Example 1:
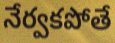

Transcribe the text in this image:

నేర్వకపోతే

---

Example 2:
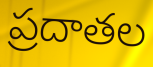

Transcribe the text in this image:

ప్రదాతల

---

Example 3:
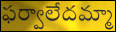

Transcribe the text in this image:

ఫర్వాలేదమ్మా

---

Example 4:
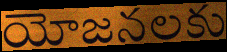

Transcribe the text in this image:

యోజనలకు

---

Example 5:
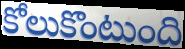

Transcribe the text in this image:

కోలుకొంటుంది